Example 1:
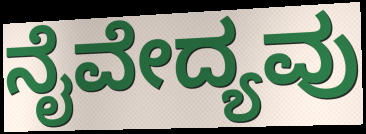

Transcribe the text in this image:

ನೈವೇದ್ಯವು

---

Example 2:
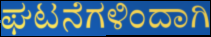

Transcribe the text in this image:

ಘಟನೆಗಳಿಂದಾಗಿ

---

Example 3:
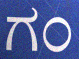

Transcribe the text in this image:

ಗಂ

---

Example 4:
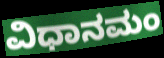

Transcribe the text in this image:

ವಿಧಾನಮಂ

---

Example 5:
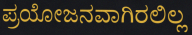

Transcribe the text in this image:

ಪ್ರಯೋಜನವಾಗಿರಲಿಲ್ಲ